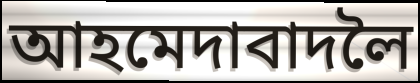
আহমেদাবাদলৈ